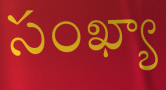
సంఖ్యా